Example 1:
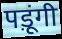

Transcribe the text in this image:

पड़ूंगी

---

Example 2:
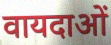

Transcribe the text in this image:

वायदाओं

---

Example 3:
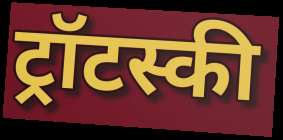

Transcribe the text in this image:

ट्रॉटस्की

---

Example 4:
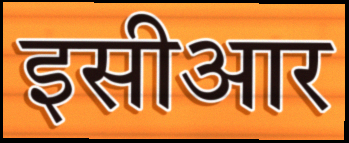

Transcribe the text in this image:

इसीआर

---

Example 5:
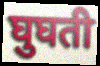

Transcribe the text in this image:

घुघती